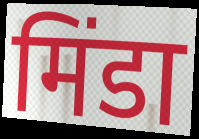
मिंडा